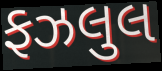
ફઝલુલ